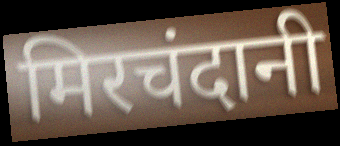
मिरचंदानी